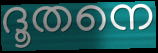
ദൂതനെ